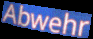
Abwehr